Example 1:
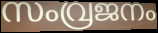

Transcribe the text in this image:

സംവ്രജനം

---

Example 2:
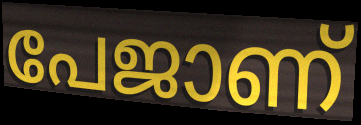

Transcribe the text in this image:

പേജാണ്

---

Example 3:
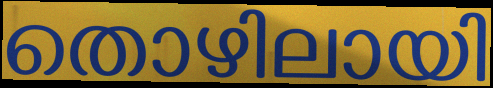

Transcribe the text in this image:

തൊഴിലായി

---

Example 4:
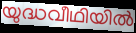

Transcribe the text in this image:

യുദ്ധവീഥിയിൽ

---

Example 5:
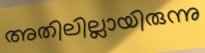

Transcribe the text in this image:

അതിലില്ലായിരുന്നു